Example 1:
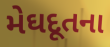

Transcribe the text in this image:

મેઘદૂતના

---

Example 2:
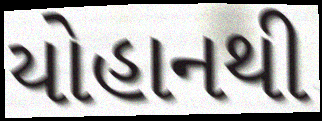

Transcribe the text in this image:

યોહાનથી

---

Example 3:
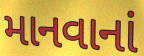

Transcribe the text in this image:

માનવાનાં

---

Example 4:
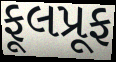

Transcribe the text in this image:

ફૂલપ્રૂફ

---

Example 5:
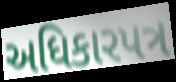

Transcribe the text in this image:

અધિકારપત્ર